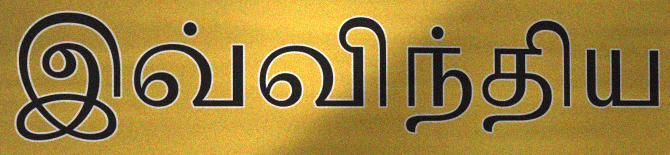
இவ்விந்திய